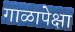
गाळापेक्षा